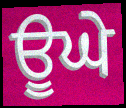
ਊਘੇ